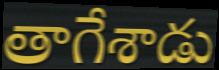
తాగేశాడు